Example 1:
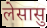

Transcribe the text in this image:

लेसासु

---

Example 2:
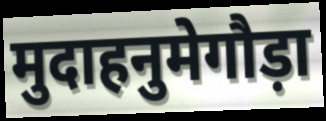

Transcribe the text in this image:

मुदाहनुमेगौड़ा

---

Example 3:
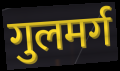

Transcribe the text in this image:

गुलमर्ग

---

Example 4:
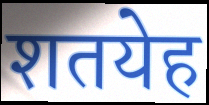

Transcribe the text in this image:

शतयेह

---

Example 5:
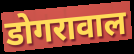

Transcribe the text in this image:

डोगरावाल